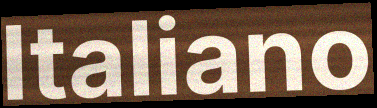
Italiano